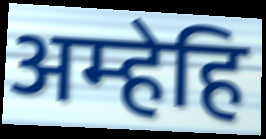
अम्हेहि